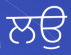
ਲਉ